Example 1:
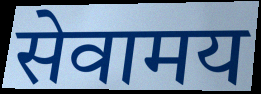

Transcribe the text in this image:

सेवामय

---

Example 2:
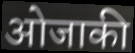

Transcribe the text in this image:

ओजाकी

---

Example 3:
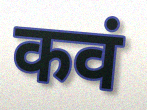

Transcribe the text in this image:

कवं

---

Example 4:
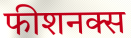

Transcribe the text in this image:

फीशनक्स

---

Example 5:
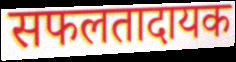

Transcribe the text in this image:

सफलतादायक